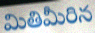
మితిమీరిన